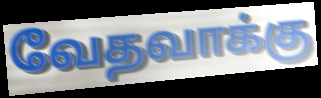
வேதவாக்கு